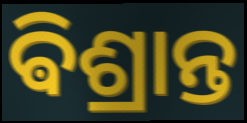
ଵିଶ୍ରାନ୍ତ